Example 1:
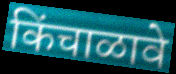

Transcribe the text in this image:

किंचाळावे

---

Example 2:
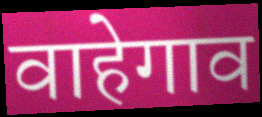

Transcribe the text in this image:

वाहेगाव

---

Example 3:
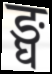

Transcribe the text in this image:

ङ्घ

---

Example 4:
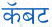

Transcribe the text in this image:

कॅबट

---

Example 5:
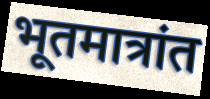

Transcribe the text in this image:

भूतमात्रांत